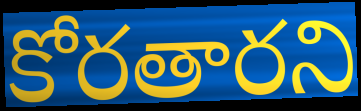
కోరతారని